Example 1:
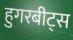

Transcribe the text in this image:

हुगरबीट्स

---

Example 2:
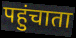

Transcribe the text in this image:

पहुंचाता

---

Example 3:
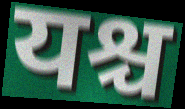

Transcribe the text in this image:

यश्च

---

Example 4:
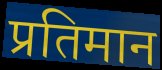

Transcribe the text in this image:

प्रतिमान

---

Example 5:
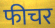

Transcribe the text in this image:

फीचर